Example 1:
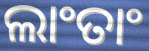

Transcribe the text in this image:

ଲାଂତାଂ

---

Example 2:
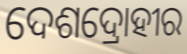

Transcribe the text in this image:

ଦେଶଦ୍ରୋହୀର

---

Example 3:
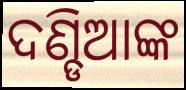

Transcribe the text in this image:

ଦଣ୍ଡିଆଙ୍କ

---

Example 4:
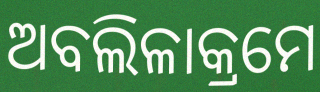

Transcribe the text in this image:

ଅବଲିଳାକ୍ରମେ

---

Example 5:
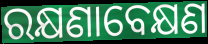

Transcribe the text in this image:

ରକ୍ଷଣାବେକ୍ଷଣ